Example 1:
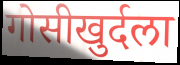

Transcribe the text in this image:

गोसीखुर्दला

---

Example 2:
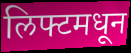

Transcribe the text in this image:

लिफ्टमधून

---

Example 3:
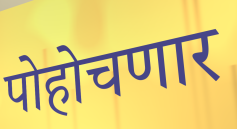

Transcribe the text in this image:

पोहोचणार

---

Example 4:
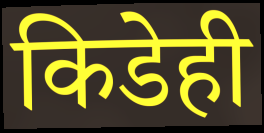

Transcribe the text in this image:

किडेही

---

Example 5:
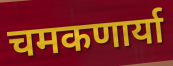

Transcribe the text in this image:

चमकणार्या